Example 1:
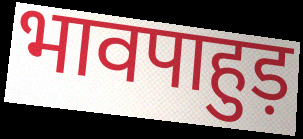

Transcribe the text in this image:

भावपाहुड़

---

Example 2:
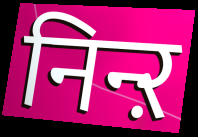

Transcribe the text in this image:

निन्ऱ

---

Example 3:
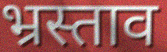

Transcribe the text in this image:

भ्रस्ताव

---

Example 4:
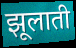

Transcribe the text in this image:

झूलाती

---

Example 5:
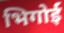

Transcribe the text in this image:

भिगोई